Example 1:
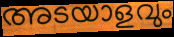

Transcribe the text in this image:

അടയാളവും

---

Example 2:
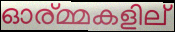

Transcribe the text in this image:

ഓര്മ്മകളില്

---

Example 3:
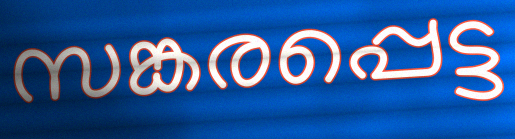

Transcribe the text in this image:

സങ്കരപ്പെട്ട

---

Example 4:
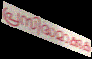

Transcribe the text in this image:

പ്രസിദ്ധമാക്കുക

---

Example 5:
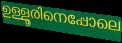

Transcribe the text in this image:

ഉള്ളൂരിനെപ്പോലെ